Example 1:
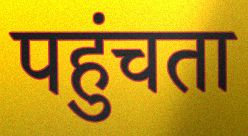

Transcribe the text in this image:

पहुंचता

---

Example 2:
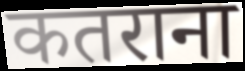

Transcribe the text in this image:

कतराना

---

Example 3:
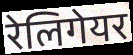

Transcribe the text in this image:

रेलिगेयर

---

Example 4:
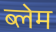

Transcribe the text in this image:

ब्लेम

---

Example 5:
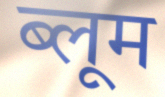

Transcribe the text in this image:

ब्लूम